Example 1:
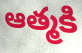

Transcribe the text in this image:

ఆత్మకి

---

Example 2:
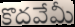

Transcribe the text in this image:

కొదవేమీ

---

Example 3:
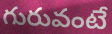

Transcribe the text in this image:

గురువంటే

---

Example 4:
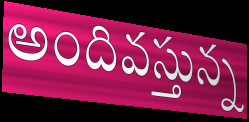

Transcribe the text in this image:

అందివస్తున్న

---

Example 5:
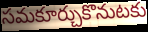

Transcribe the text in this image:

సమకూర్చుకొనుటకు